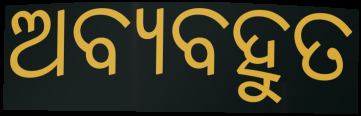
ଅବ୍ୟବହୁତ